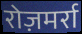
रोज़मर्रा